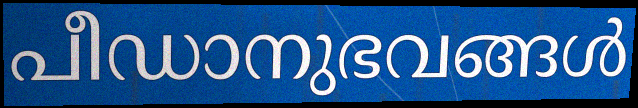
പീഡാനുഭവങ്ങൾ